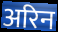
अरिन